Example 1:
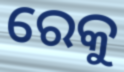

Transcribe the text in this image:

ରେକୁ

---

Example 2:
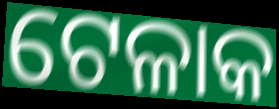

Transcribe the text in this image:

ଟେଳାକ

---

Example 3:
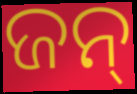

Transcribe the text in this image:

ଜନ୍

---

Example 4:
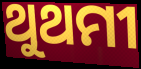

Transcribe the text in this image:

ଥୁଥମୀ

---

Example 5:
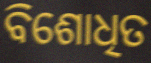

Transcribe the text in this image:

ବିଶୋଧିତ